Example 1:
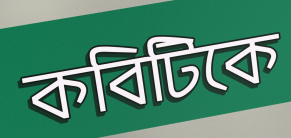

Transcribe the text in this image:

কবিটিকে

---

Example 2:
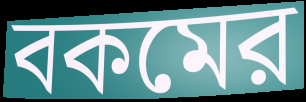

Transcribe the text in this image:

বকমের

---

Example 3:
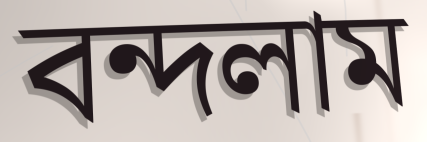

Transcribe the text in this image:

বন্দলাম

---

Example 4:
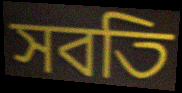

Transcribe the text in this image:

সবতি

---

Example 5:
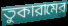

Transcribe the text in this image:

তুকারামের